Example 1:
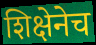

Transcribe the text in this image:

शिक्षेनेच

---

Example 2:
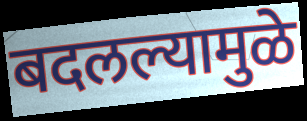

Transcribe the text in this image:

बदलल्यामुळे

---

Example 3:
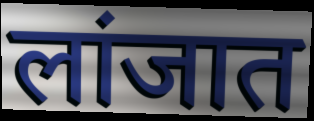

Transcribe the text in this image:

लांजात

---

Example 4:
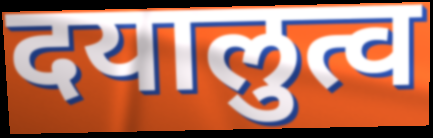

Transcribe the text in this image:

दयालुत्व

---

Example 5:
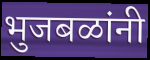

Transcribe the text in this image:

भुजबळांनी